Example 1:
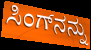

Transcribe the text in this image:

ಸಿಂಗ್‌ನನ್ನು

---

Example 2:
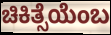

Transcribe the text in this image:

ಚಿಕಿತ್ಸೆಯೆಂಬ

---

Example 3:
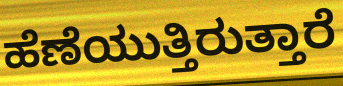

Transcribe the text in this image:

ಹೆಣೆಯುತ್ತಿರುತ್ತಾರೆ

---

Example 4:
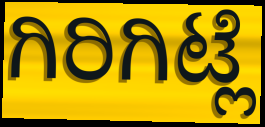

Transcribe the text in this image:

ಗಿರಿಗಿಟ್ಲೆ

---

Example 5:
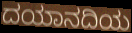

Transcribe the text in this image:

ದಯಾನದಿಯ